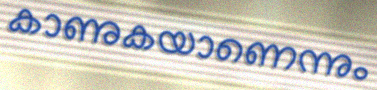
കാണുകയാണെന്നും